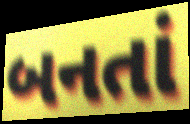
બનતાં